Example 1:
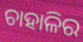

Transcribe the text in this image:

ଚାହାଳିର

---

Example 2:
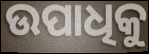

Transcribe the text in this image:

ଉପାଧିକୁ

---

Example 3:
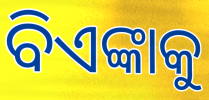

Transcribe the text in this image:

ବିଏଙ୍କାକୁ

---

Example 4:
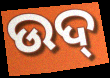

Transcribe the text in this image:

ଉଦ୍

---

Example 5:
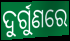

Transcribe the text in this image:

ଦୁର୍ଗୁଣରେ